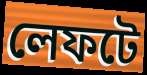
লেফটে